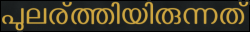
പുലര്ത്തിയിരുന്നത്